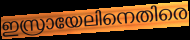
ഇസ്രായേലിനെതിരെ